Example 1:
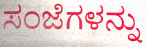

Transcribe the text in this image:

ಸಂಜೆಗಳನ್ನು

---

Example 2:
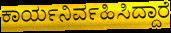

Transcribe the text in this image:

ಕಾರ್ಯನಿರ್ವಹಿಸಿದ್ದಾರೆ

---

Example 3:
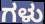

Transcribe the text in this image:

ಗಳು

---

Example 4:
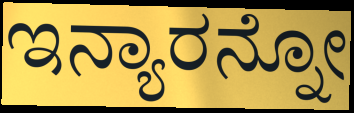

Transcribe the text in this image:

ಇನ್ಯಾರನ್ನೋ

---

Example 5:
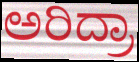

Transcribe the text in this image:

ಅರಿದ್ರಾ